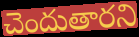
చెందుతారని